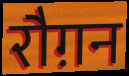
रौग़न